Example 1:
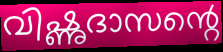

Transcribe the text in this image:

വിഷ്ണുദാസന്റെ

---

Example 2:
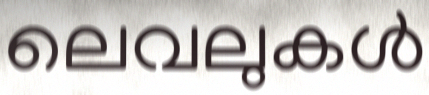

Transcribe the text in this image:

ലെവലുകൾ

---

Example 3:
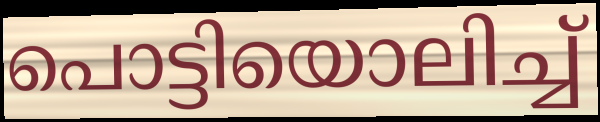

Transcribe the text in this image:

പൊട്ടിയൊലിച്ച്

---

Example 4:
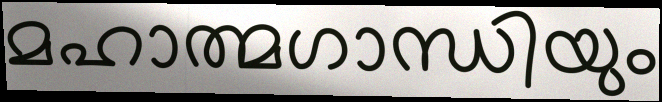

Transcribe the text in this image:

മഹാത്മഗാന്ധിയും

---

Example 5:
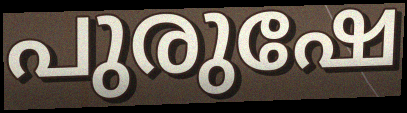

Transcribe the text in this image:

പുരുഷേ